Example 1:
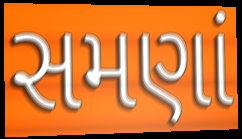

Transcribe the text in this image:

સમણાં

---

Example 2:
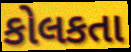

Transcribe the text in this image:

કોલકતા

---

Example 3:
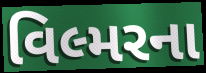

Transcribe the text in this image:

વિલ્મરના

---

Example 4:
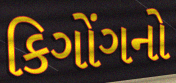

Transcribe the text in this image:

કિગોંગનો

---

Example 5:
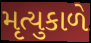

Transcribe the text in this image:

મૃત્યુકાળે